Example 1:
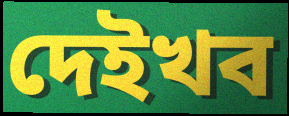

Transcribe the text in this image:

দেইখব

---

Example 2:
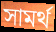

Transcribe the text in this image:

সামর্থ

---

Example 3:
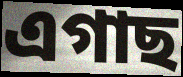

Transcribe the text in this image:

এগাছ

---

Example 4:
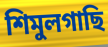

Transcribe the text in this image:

শিমুলগাছি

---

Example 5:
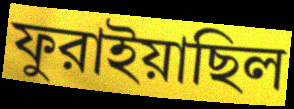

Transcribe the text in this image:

ফুরাইয়াছিল